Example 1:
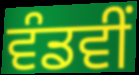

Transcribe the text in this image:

ਵੰਡਵੀਂ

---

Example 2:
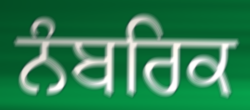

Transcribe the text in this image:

ਨੰਬਰਿਕ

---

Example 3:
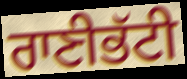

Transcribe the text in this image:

ਰਾਣੀਭੱਟੀ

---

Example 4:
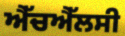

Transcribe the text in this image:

ਐੱਚਐੱਲਸੀ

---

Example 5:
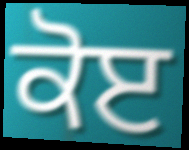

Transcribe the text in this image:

ਕੋੲ